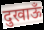
दुखाऊँ